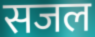
सजल